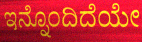
ಇನ್ನೊಂದಿದೆಯೇ